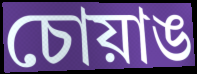
চোয়াঙ